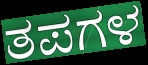
ತಪಗಳ